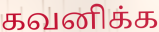
கவனிக்க